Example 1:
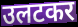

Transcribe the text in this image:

उलटकर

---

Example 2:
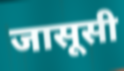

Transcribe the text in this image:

जासूसी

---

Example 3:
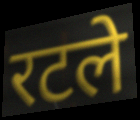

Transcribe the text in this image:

रटले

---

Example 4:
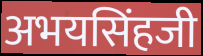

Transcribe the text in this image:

अभयसिंहजी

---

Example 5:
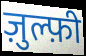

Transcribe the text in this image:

ज़ुल्फ़ी